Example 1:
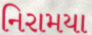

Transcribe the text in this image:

નિરામયા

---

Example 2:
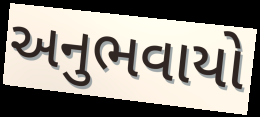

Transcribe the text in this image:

અનુભવાયો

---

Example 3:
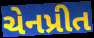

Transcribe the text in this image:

ચેનપ્રીત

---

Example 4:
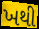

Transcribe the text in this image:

ખથી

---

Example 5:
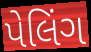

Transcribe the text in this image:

પેલિંગ